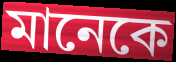
মানেকে